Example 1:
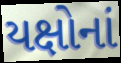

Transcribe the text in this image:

યક્ષોનાં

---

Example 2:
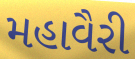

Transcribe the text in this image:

મહાવૈરી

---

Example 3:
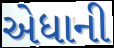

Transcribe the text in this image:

એધાની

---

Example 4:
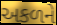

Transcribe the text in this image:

અકળને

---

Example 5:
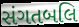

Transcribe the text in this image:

સંગતબલિ